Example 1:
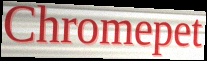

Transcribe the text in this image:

Chromepet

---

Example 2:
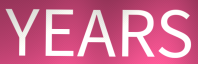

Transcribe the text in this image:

YEARS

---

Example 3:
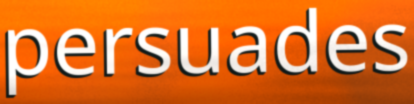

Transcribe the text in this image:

persuades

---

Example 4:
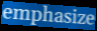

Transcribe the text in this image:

emphasize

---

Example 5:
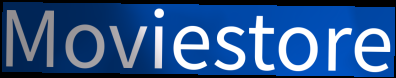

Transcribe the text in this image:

Moviestore